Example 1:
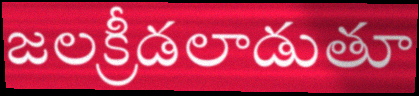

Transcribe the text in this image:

జలక్రీడలాడుతూ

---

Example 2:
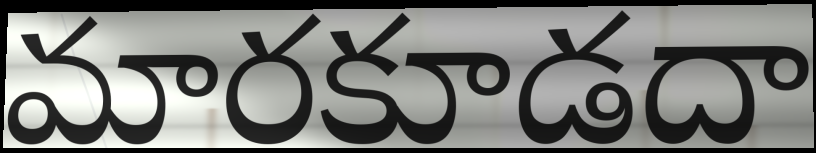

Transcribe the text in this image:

మారకూడదా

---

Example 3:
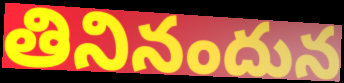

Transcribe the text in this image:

తినినందున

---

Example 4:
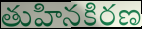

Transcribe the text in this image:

తుహినకిరణ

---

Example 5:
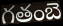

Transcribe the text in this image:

గతంబె